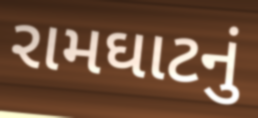
રામઘાટનું